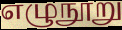
எழுநூறு